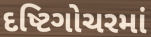
દષ્ટિગોચરમાં